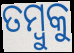
ତମ୍ବୁକୁ